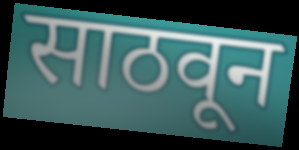
साठवून